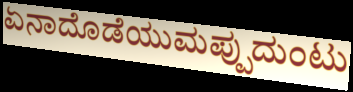
ಏನಾದೊಡೆಯುಮಪ್ಪುದುಂಟು